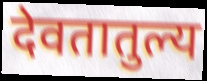
देवतातुल्य